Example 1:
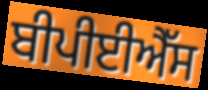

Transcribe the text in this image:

ਬੀਪੀਈਐੱਸ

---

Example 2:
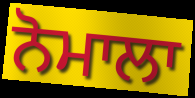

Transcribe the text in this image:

ਨੋਮਾਲਾ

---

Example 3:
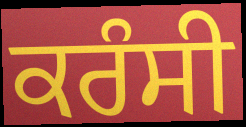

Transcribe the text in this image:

ਕਰੰਸੀ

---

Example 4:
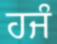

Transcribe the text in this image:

ਹਜੰ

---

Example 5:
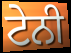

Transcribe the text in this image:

ਟੇਨੀ